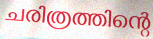
ചരിത്രത്തിന്റെ